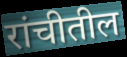
रांचीतील